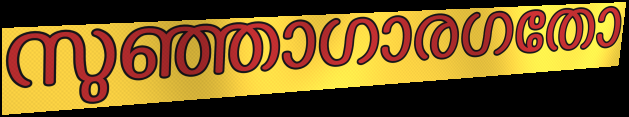
സുഞ്ഞാഗാരഗതോ